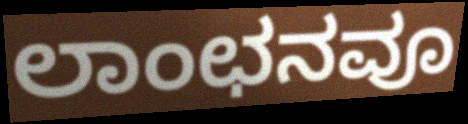
ಲಾಂಛನವೂ